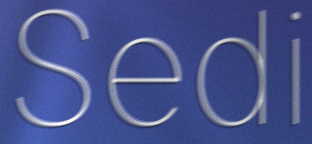
Sedi